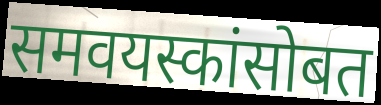
समवयस्कांसोबत